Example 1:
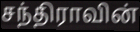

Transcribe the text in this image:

சந்திராவின்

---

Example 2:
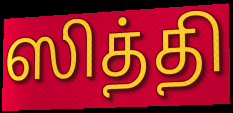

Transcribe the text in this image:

ஸித்தி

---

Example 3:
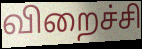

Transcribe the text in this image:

விறைச்சி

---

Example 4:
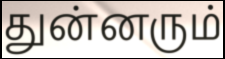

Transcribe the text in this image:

துன்னரும்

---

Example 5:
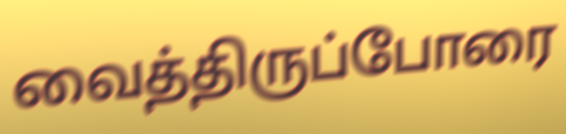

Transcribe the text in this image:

வைத்திருப்போரை